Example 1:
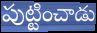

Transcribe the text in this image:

పుట్టించాడు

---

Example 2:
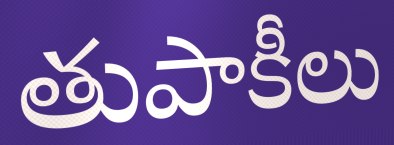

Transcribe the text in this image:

తుపాకీలు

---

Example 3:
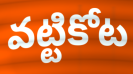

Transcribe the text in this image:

వట్టికోట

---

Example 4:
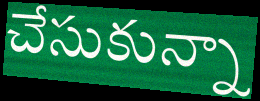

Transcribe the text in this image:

చేసుకున్నా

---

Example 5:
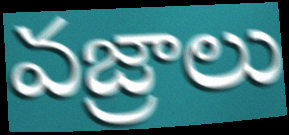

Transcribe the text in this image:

వజ్రాలు